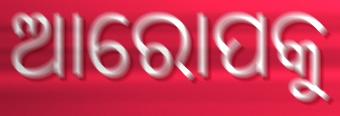
ଆରୋପକୁ